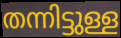
തന്നിട്ടുള്ള